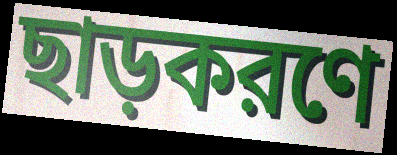
ছাড়করণে